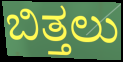
ಬಿತ್ತಲು